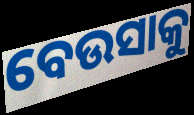
ବେଉସାକୁ